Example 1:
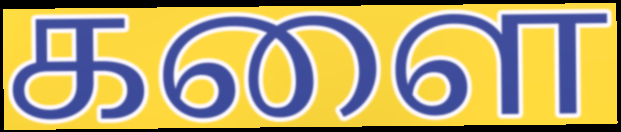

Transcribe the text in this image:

களை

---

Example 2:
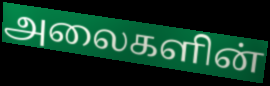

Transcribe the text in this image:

அலைகளின்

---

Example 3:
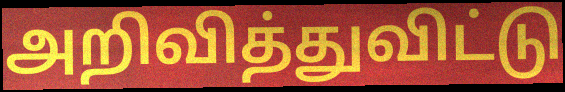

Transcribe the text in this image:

அறிவித்துவிட்டு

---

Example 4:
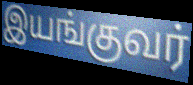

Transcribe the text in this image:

இயங்குவர்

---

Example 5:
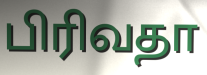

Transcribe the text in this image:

பிரிவதா